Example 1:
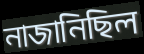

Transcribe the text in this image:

নাজানিছিল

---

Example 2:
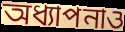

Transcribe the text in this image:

অধ্যাপনাও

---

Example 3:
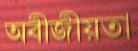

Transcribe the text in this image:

অবীজীয়তা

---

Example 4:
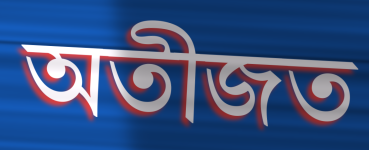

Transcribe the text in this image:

অতীজত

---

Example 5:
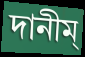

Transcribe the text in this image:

দানীম্